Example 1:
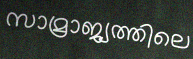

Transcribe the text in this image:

സാമ്രാജ്യത്തിലെ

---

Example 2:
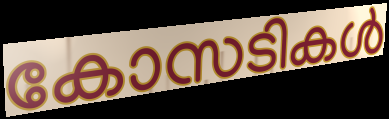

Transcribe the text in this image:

കോസടികൾ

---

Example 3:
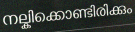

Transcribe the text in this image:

നല്കിക്കൊണ്ടിരിക്കും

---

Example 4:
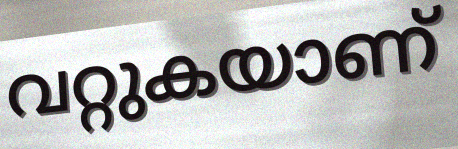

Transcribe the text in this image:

വറ്റുകയാണ്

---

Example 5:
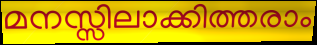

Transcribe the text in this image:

മനസ്സിലാക്കിത്തരാം